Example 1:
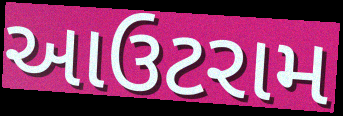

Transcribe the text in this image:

આઉટરામ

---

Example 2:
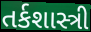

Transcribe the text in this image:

તર્કશાસ્ત્રી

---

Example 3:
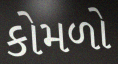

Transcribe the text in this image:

કોમળો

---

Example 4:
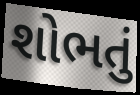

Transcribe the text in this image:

શોભતું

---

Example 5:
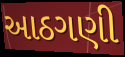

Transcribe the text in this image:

આઠગણી